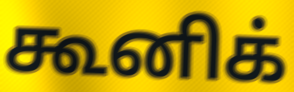
கூனிக்